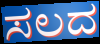
ಸಲದ